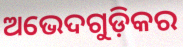
ଅଭେଦଗୁଡ଼ିକର